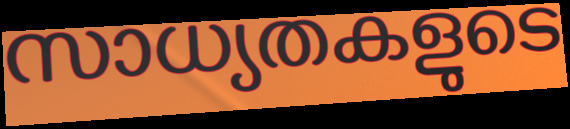
സാധ്യതകളുടെ